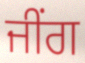
ਜੀਂਗ